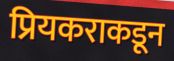
प्रियकराकडून